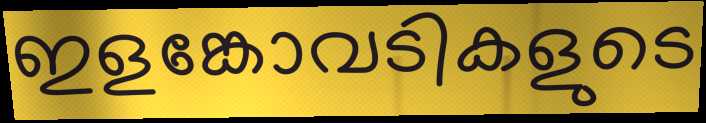
ഇളങ്കോവടികളുടെ